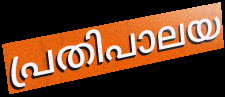
പ്രതിപാലയ